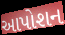
આપોશન